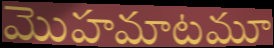
మొహమాటమూ